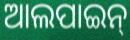
ଆଲପାଇନ୍